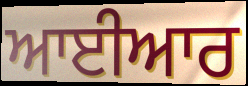
ਆਈਆਰ